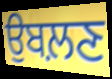
ਉਬਲ਼ਣ